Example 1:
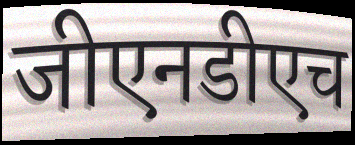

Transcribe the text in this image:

जीएनडीएच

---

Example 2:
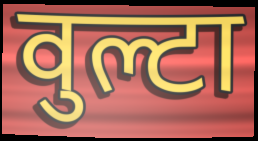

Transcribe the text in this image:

वुल्टा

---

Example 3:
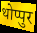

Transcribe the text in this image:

थोप्पुर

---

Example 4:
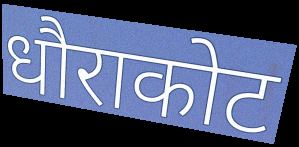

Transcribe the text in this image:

धौराकोट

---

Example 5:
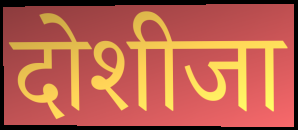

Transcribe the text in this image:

दोशीजा